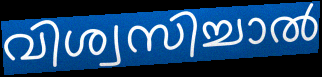
വിശ്വസിച്ചാൽ